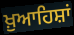
ਖ਼ੁਆਹਿਸ਼ਾਂ